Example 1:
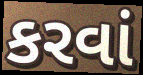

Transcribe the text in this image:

કરવાં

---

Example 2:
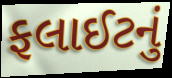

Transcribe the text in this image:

ફલાઈટનું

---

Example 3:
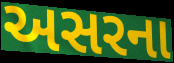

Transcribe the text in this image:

અસરના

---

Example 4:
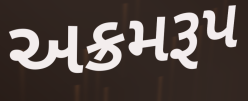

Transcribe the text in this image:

અક્રમરૂપ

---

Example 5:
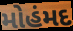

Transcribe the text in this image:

મોહંમદ